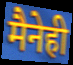
मैनेही